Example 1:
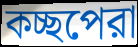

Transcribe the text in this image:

কচ্ছপেরা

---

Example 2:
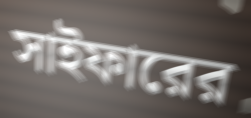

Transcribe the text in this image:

সাইফারের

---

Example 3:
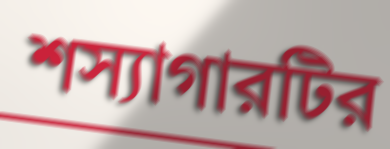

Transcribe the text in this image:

শস্যাগারটির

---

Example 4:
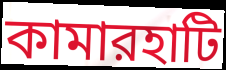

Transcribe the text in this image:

কামারহাটি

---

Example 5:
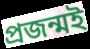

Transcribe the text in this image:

প্রজন্মই